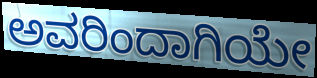
ಅವರಿಂದಾಗಿಯೇ